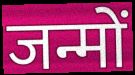
जन्मों